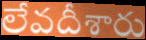
లేవదీశారు